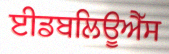
ਈਡਬਲਿਊਐੱਸ